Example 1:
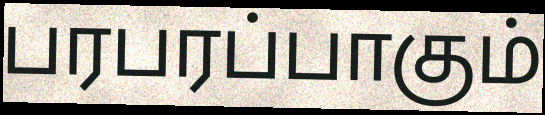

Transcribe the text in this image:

பரபரப்பாகும்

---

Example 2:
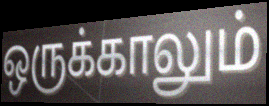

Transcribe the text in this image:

ஒருக்காலும்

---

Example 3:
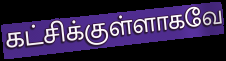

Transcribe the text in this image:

கட்சிக்குள்ளாகவே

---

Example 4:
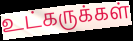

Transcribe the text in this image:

உட்கருக்கள்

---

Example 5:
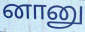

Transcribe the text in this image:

னானு